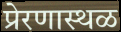
प्रेरणास्थळ